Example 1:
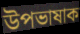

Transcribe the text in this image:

উপভাষাক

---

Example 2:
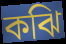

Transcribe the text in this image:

কঝি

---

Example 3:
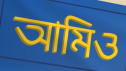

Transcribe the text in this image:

আমিও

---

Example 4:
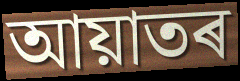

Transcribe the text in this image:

আয়াতৰ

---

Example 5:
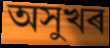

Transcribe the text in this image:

অসুখৰ